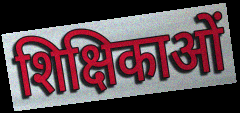
शिक्षिकाओं